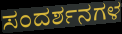
ಸಂದರ್ಶನಗಳ